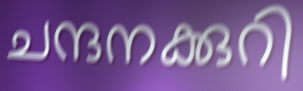
ചന്ദനക്കുറി